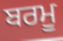
ਬਰਮੂ